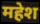
महेश